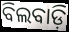
ବିଲବାଡ଼ି